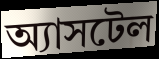
অ্যাসটেল